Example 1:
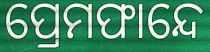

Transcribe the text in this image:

ପ୍ରେମଫାନ୍ଦେ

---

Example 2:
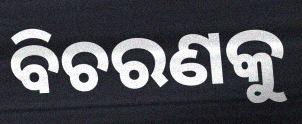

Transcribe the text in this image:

ବିଚରଣକୁ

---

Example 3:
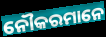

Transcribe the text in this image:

ନୌକରମାନେ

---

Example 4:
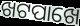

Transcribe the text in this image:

ଖଟପାଖେ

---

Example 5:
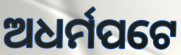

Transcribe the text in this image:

ଅଧର୍ମପଟେ